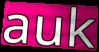
auk